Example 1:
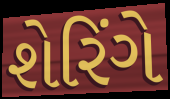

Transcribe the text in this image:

શેરિંગે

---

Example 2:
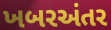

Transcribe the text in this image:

ખબરઅંતર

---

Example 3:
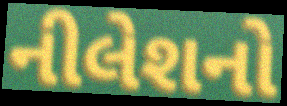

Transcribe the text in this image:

નીલેશનો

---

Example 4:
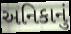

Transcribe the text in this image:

અનિકાનું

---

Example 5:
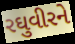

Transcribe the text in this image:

રઘુવીરને